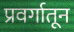
प्रवर्गातून